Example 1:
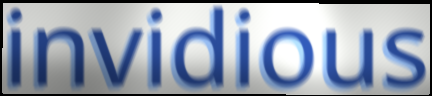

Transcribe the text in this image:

invidious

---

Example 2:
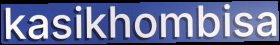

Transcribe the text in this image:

kasikhombisa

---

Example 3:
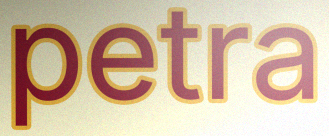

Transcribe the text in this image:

petra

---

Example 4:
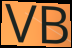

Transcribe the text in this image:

VB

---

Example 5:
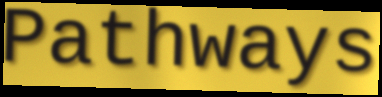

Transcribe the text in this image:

Pathways